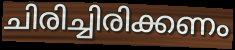
ചിരിച്ചിരിക്കണം